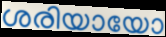
ശരിയായോ